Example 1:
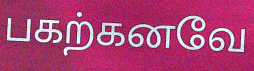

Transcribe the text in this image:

பகற்கனவே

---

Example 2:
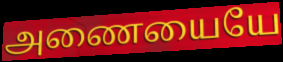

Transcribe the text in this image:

அணையையே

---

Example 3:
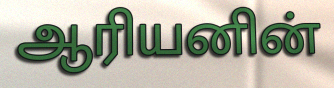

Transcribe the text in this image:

ஆரியனின்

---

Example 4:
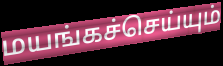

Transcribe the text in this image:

மயங்கச்செய்யும்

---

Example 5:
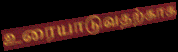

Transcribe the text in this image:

உரையாடுவதற்காக